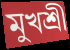
মুখশ্রী